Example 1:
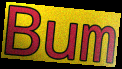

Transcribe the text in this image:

Bum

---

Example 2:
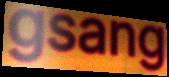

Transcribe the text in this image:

gsang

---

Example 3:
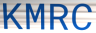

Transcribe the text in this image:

KMRC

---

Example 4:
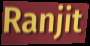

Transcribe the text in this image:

Ranjit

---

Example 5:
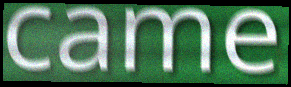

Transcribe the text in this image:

came